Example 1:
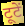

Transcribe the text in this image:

टूटें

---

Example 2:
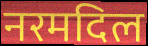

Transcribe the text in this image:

नरमदिल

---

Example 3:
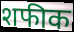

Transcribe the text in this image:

शफीक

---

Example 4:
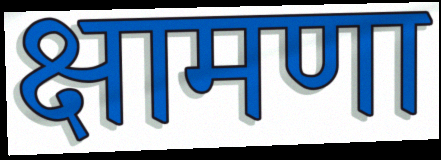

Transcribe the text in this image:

क्षामणा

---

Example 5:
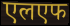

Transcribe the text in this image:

एलएफ